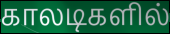
காலடிகளில்